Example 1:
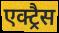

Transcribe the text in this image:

एक्ट्रैस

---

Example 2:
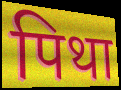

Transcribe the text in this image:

पिथा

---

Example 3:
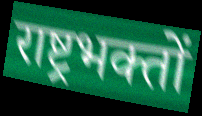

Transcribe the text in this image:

राष्ट्रभक्तों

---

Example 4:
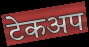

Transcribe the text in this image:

टेकअप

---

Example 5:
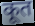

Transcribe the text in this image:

कूत